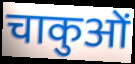
चाकुओं